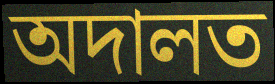
অদালত